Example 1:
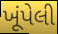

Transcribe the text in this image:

ખૂંપેલી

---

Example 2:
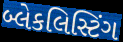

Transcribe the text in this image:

બ્લેકલિસ્ટિંગ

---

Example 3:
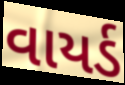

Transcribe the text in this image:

વાયર્ડ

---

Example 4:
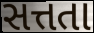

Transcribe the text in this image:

સત્તતા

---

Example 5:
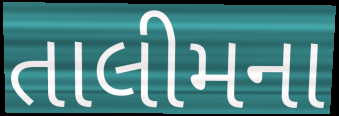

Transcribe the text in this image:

તાલીમના